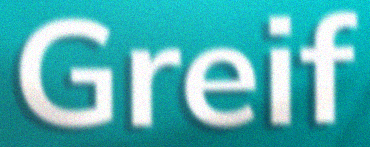
Greif